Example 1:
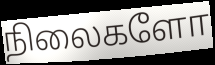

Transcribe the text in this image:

நிலைகளோ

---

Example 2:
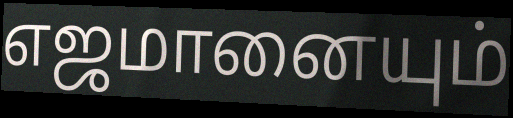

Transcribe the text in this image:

எஜமானையும்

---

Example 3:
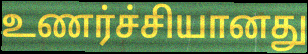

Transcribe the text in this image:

உணர்ச்சியானது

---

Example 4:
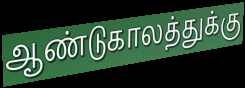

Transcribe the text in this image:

ஆண்டுகாலத்துக்கு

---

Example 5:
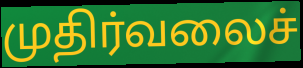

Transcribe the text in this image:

முதிர்வலைச்